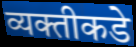
व्यक्तीकडे